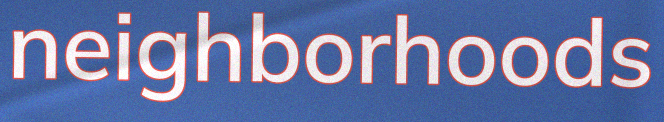
neighborhoods